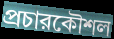
প্রচারকৌশল